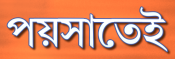
পয়সাতেই